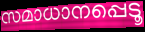
സമാധാനപ്പെടൂ